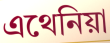
এথেনিয়া